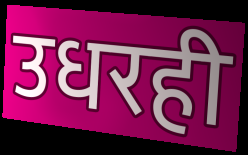
उधरही